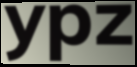
ypz